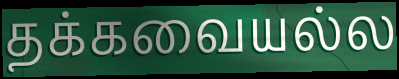
தக்கவையல்ல